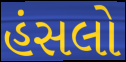
હંસલો